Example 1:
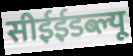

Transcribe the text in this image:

सीईईडब्ल्यू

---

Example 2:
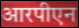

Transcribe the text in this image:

आरपीएन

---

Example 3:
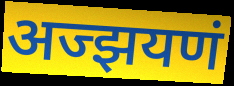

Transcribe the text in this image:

अज्झयणं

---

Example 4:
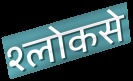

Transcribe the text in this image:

श्लोकसे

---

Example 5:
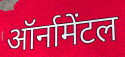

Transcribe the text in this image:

ऑर्नामेंटल